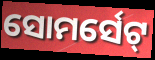
ସୋମର୍ସେଟ୍